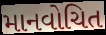
માનવોચિત